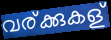
വര്ക്കുകള്